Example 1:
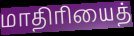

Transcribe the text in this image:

மாதிரியைத்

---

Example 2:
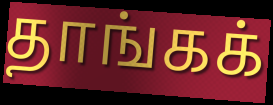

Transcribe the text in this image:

தாங்கக்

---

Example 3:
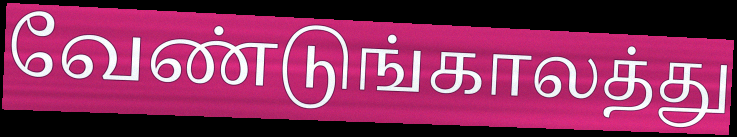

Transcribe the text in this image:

வேண்டுங்காலத்து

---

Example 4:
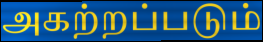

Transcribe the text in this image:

அகற்றப்படும்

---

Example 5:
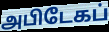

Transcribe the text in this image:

அபிடேகப்